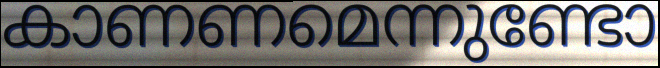
കാണണമെന്നുണ്ടോ